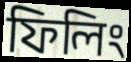
ফিলিং